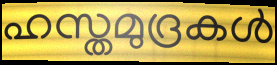
ഹസ്തമുദ്രകൾ